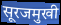
सूरजमुखी